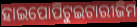
ହାଇପୋପିଟୁଇଟାରୀଜିମ